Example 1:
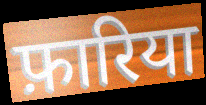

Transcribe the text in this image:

फ़ारिया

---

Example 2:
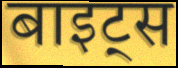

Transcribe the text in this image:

बाइट्स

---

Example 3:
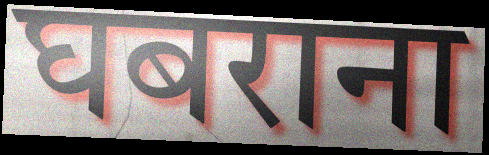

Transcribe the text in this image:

घबराना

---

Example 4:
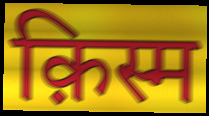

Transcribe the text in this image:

क़िस्म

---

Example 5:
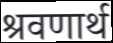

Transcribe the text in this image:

श्रवणार्थ